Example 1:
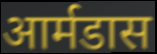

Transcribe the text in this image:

आर्मडास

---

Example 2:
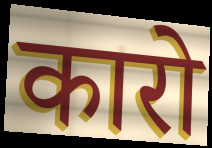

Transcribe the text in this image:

कारो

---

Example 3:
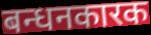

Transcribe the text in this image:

बन्धनकारक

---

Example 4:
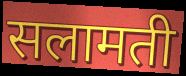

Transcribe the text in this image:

सलामती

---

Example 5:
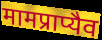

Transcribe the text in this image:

मामप्राप्यैव